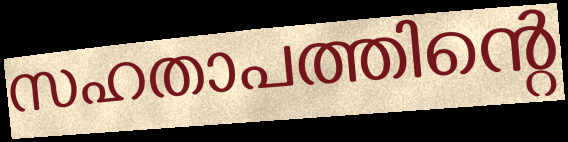
സഹതാപത്തിന്റെ